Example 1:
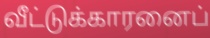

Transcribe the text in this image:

வீட்டுக்காரனைப்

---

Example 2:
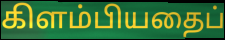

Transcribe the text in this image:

கிளம்பியதைப்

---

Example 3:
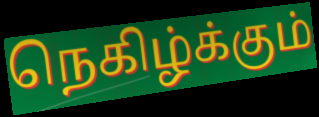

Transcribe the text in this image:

நெகிழ்க்கும்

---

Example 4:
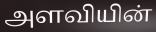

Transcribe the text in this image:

அளவியின்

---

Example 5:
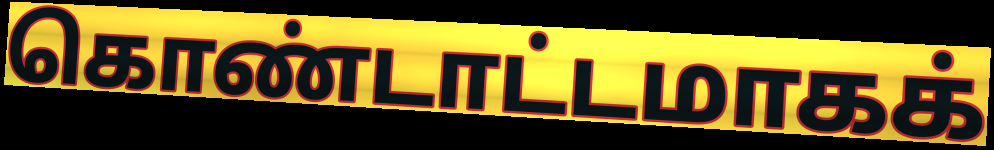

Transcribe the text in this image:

கொண்டாட்டமாகக்